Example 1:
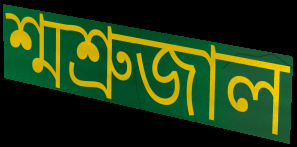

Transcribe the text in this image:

শ্মশ্রুজাল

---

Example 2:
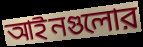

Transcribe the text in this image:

আইনগুলোর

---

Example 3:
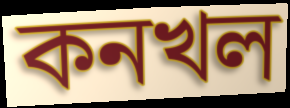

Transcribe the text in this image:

কনখল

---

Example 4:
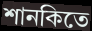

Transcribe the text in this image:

শানকিতে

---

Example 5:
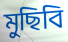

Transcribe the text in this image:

মুছিবি